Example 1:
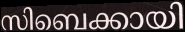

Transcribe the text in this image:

സിബെക്കായി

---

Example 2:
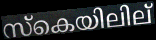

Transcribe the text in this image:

സ്കെയിലില്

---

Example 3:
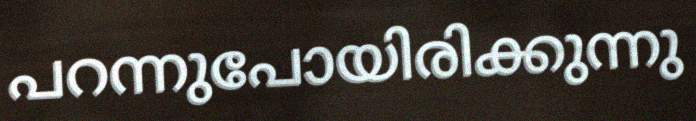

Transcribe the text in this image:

പറന്നുപോയിരിക്കുന്നു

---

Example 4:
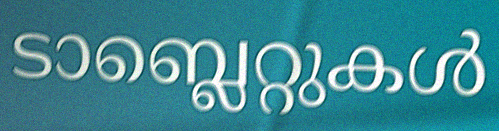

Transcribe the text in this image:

ടാബ്ലെറ്റുകൾ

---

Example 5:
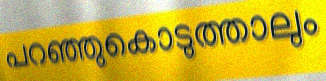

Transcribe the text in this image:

പറഞ്ഞുകൊടുത്താലും